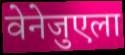
वेनेजुएला